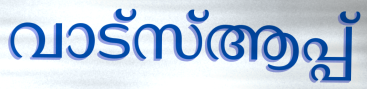
വാട്സ്ആപ്പ്